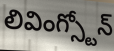
లివింగ్స్టోన్